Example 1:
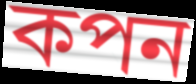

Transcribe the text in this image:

কপন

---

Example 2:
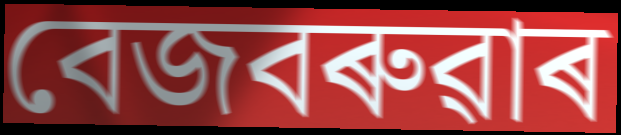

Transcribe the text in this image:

বেজবৰুৱাৰ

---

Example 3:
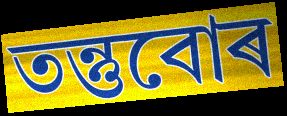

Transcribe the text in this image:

তন্তুবোৰ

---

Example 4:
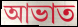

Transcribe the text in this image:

আভাত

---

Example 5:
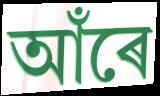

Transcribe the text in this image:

আঁৰে